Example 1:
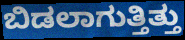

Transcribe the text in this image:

ಬಿಡಲಾಗುತ್ತಿತ್ತು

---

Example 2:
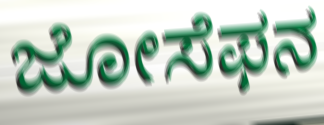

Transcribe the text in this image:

ಜೋಸೆಫನ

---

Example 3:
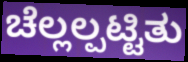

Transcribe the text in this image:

ಚೆಲ್ಲಲ್ಪಟ್ಟಿತು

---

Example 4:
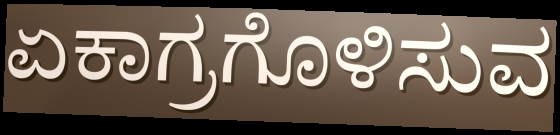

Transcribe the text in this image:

ಏಕಾಗ್ರಗೊಳಿಸುವ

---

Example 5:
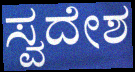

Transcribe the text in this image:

ಸ್ವದೇಶ